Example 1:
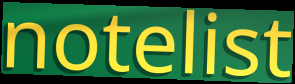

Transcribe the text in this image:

notelist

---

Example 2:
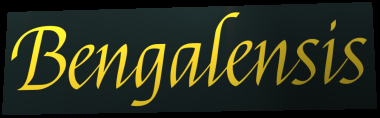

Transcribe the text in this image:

Bengalensis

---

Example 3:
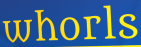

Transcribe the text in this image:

whorls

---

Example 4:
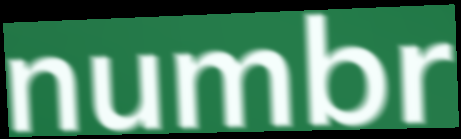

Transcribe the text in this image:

numbr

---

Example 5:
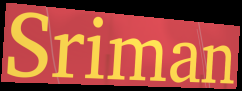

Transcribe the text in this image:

Sriman